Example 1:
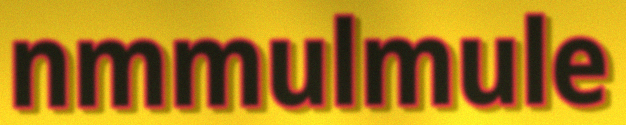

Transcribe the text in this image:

nmmulmule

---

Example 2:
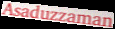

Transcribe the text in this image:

Asaduzzaman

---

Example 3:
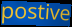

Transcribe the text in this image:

postive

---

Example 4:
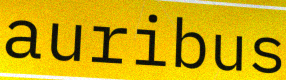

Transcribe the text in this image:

auribus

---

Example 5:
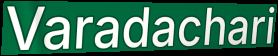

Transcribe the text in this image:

Varadachari